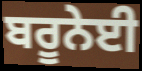
ਬਰੂਨੇਈ